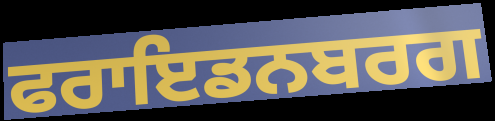
ਫਰਾਇਡਨਬਰਗ